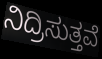
ನಿದ್ರಿಸುತ್ತವೆ